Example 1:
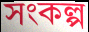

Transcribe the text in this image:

সংকল্প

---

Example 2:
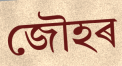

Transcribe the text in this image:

জৌহৰ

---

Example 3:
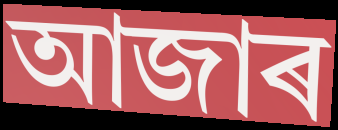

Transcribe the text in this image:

আজাৰ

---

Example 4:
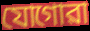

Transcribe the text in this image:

যোগোৱা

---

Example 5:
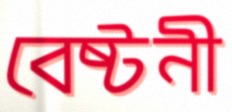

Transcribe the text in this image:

বেষ্টনী